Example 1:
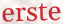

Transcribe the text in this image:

erste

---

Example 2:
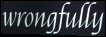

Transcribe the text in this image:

wrongfully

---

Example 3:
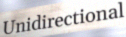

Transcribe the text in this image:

Unidirectional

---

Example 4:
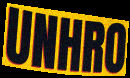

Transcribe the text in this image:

UNHRO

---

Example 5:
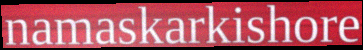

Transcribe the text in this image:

namaskarkishore